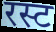
रस्ट